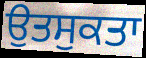
ਉਤਸੁਕਤਾ